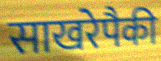
साखरेपैकी